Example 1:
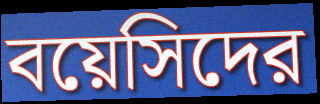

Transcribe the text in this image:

বয়েসিদের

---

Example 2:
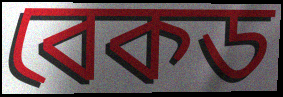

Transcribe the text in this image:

বেকড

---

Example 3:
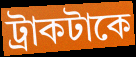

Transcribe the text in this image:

ট্রাকটাকে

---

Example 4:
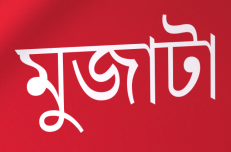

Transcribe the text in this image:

মুজাটা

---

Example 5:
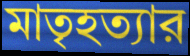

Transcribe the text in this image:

মাতৃহত্যার